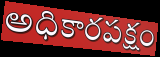
అధికారపక్షం